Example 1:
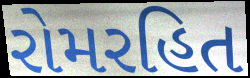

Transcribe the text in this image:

રોમરહિત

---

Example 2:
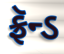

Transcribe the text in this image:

ફ્રૅન્ડ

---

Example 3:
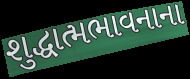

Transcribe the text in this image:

શુદ્ધાત્મભાવનાના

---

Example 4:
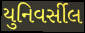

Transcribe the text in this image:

યુનિવર્સીલ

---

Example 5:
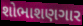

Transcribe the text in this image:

શોભાશણગાર